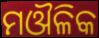
ମଔଳିକ